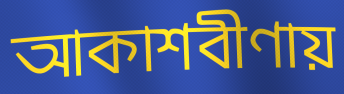
আকাশবীণায়